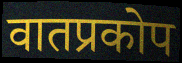
वातप्रकोप